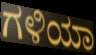
ಗಳಿಯಾ